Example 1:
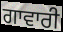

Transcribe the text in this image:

ਗਾਵਾਰੀ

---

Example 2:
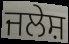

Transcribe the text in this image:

ਜਲੇਸ਼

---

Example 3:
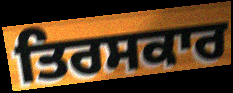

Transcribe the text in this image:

ਤਿਰਸਕਾਰ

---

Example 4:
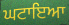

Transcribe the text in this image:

ਘਟਾਇਆ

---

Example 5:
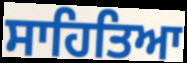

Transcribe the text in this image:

ਸਾਹਿਤਿਆ